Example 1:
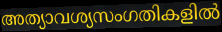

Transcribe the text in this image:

അത്യാവശ്യസംഗതികളിൽ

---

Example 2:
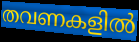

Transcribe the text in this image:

തവണകളിൽ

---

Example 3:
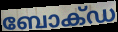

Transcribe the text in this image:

ബോക്ഡ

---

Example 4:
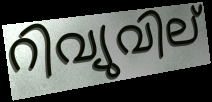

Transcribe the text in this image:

റിവ്യുവില്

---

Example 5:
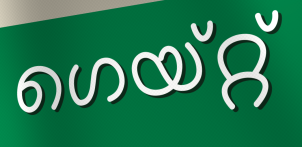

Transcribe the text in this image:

ഗെയ്റ്റ്